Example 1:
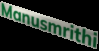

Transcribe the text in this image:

Manusmrithi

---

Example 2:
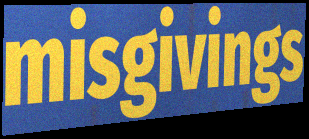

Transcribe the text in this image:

misgivings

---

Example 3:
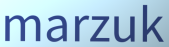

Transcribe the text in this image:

marzuk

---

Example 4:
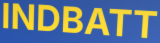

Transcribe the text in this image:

INDBATT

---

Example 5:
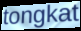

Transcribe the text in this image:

tongkat